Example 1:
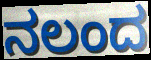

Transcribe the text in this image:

ನಲಂದ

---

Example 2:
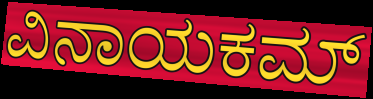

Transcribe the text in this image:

ವಿನಾಯಕಮ್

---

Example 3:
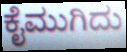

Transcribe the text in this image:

ಕೈಮುಗಿದು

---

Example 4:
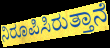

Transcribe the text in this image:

ನಿರೂಪಿಸಿರುತ್ತಾನೆ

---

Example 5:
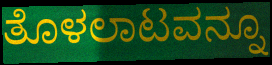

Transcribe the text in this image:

ತೊಳಲಾಟವನ್ನೂ